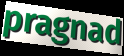
pragnad